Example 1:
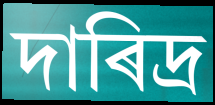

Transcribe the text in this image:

দাৰিদ্ৰ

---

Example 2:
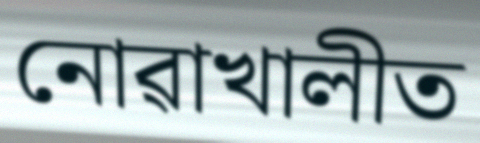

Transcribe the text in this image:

নোৱাখালীত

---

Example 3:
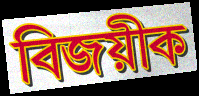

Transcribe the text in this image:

বিজয়ীক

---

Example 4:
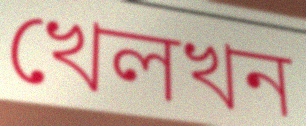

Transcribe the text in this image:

খেলখন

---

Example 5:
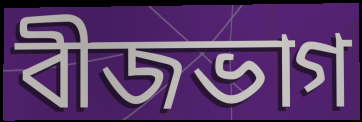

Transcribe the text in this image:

বীজভাগ